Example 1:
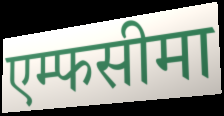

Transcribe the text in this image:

एम्फसीमा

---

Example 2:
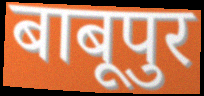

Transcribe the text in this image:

बाबूपुर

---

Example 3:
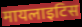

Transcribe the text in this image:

मायलाइटिस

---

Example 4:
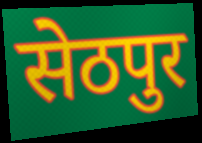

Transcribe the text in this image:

सेठपुर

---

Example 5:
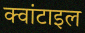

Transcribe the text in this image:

क्वांटाइल